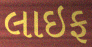
લાઇફ